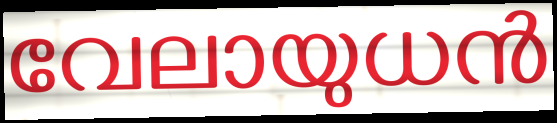
വേലായുധൻ